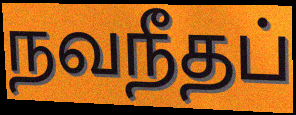
நவநீதப்